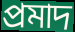
প্রমাদ